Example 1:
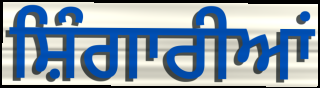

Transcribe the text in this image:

ਸ਼ਿੰਗਾਰੀਆਂ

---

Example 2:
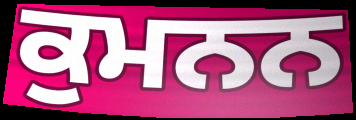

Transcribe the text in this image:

ਕੁਮਨਨ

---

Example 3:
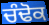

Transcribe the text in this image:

ਚੰਢੋਕ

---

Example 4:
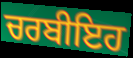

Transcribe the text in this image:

ਚਰਬੀਇਹ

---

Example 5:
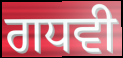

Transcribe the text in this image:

ਗਧਵੀ